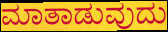
ಮಾತಾಡುವುದು